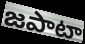
జపాటా